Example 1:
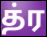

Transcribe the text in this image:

த்ர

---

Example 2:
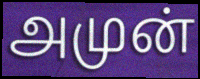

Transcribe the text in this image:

அமுன்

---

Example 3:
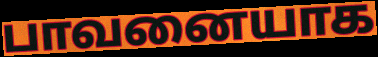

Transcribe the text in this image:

பாவனையாக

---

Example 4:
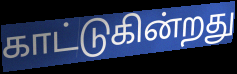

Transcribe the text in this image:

காட்டுகின்றது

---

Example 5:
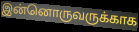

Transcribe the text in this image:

இன்னொருவருக்காக